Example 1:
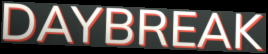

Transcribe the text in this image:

DAYBREAK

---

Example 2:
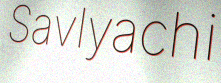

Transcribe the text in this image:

Savlyachi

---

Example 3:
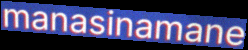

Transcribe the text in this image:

manasinamane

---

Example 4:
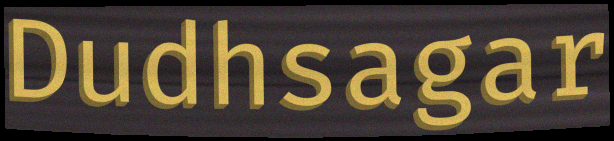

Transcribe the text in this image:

Dudhsagar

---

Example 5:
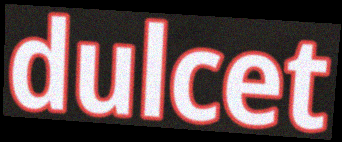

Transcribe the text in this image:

dulcet